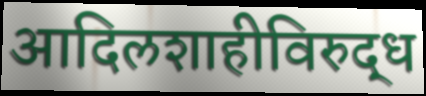
आदिलशाहीविरुद्ध